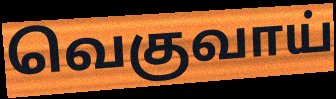
வெகுவாய்